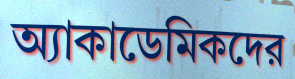
অ্যাকাডেমিকদের